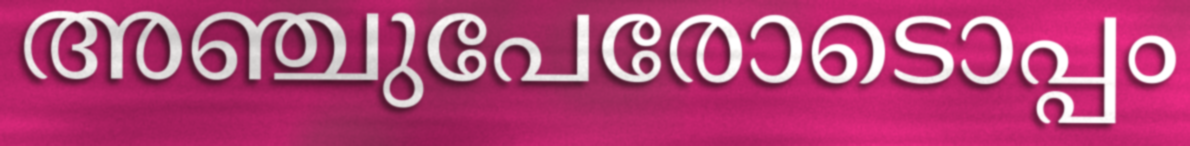
അഞ്ചുപേരോടൊപ്പം